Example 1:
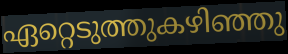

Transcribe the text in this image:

ഏറ്റെടുത്തുകഴിഞ്ഞു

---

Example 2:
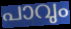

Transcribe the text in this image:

പാവും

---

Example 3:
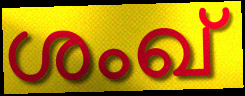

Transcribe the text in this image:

ശംഖ്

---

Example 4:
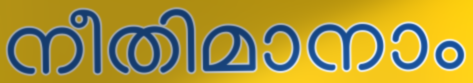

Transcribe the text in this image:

നീതിമാനാം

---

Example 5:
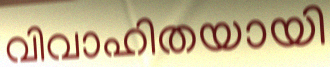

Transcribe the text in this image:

വിവാഹിതയായി